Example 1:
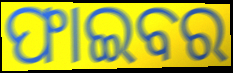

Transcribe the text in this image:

ଫାଇବର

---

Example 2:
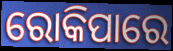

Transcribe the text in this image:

ରୋକିପାରେ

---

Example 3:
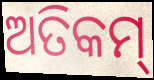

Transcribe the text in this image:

ଅତିକମ୍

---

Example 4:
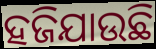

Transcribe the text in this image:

ହଜିଯାଉଛି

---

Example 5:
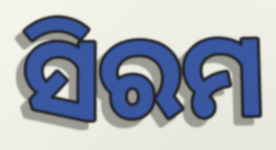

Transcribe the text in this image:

ସିରମ